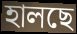
হালছে